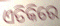
ଏତିକିରେ